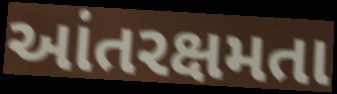
આંતરક્ષમતા